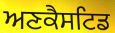
ਅਣਕੈਸਟਿਡ